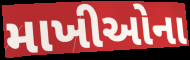
માખીઓના